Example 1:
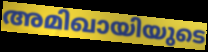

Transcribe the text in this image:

അമിഖായിയുടെ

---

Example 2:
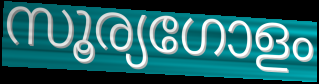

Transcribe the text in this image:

സൂര്യഗോളം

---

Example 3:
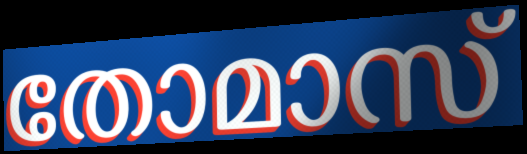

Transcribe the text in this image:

തോമാസ്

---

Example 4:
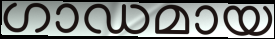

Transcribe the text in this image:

ഗാഡമായ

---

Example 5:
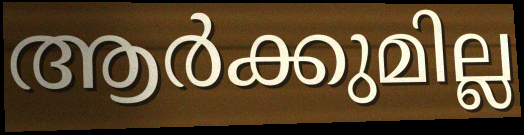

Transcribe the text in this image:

ആർക്കുമില്ല